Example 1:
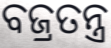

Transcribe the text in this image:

ବଜ୍ରତନ୍ତ୍ର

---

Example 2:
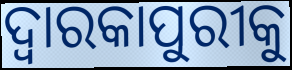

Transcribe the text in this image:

ଦ୍ୱାରକାପୁରୀକୁ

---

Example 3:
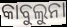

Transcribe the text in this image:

କାବୁଲୁନା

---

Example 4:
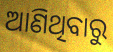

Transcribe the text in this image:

ଆଣିଥିବାରୁ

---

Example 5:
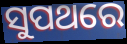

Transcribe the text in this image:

ସୁପଥରେ